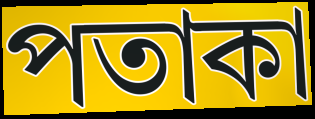
পতাকা